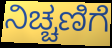
ನಿಚ್ಚಣಿಗೆ